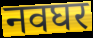
नवघर